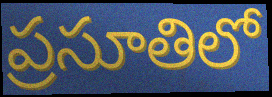
ప్రసూతిలో